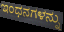
ಇಂಧನಗಳನ್ನು